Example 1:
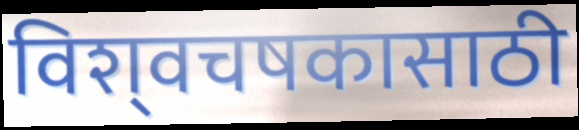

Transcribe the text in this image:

विश्वचषकासाठी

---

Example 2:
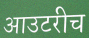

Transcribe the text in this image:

आउटरीच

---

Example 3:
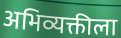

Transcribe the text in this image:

अभिव्यक्तीला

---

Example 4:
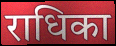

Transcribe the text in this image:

राधिका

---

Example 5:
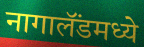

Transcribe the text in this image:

नागालॅंडमध्ये